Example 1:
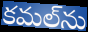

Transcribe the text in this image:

కమల్‌ను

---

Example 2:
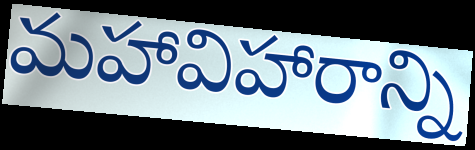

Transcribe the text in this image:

మహావిహారాన్ని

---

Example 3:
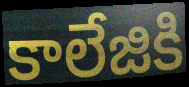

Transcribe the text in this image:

కాలేజికి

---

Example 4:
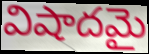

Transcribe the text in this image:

విషాదమై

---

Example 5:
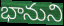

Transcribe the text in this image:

భానుని